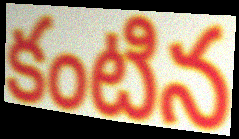
కంటిన